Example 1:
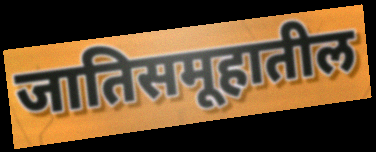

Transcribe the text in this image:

जातिसमूहातील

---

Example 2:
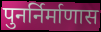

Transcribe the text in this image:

पुनर्निर्माणास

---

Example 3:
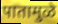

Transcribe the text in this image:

पातामुळे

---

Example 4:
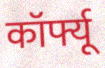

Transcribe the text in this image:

कॉर्फ्यू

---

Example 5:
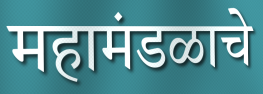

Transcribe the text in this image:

महामंडळाचे